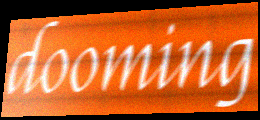
dooming